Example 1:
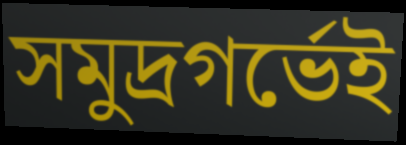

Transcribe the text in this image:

সমুদ্রগর্ভেই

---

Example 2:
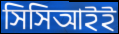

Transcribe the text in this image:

সিসিআইই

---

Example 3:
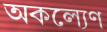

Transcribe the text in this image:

অকল্যেণ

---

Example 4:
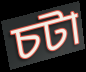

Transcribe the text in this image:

চটা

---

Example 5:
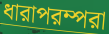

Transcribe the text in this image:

ধারাপরম্পরা